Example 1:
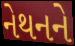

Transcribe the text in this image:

નેથનને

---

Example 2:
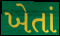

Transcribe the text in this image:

ખેતાં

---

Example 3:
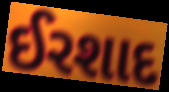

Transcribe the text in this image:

ઈરશાદ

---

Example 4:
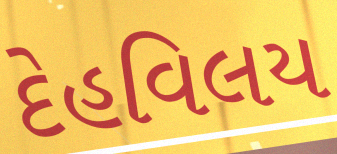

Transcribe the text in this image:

દેહવિલય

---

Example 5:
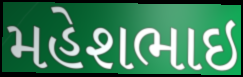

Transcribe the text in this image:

મહેશભાઇ